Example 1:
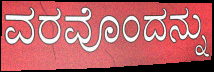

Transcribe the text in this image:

ವರವೊಂದನ್ನು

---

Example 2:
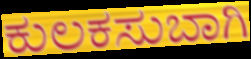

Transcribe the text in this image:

ಕುಲಕಸುಬಾಗಿ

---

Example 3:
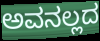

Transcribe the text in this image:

ಅವನಲ್ಲದ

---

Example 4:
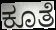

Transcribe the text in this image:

ಕೂತೆ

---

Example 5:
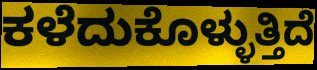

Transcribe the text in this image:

ಕಳೆದುಕೊಳ್ಳುತ್ತಿದೆ